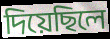
দিয়েছিলে